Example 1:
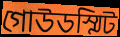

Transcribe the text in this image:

গোউডস্মিট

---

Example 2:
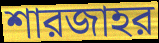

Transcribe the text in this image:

শারজাহর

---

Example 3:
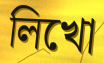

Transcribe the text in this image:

লিখো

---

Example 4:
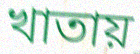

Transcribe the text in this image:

খাতায়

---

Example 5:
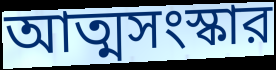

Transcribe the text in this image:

আত্মসংস্কার